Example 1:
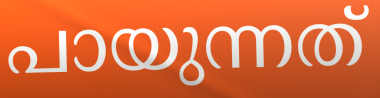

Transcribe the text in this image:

പായുന്നത്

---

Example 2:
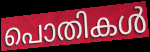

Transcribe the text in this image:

പൊതികൾ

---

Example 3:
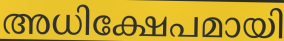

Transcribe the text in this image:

അധിക്ഷേപമായി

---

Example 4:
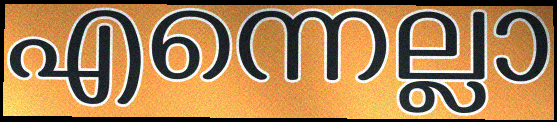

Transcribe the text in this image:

എന്നെല്ലാ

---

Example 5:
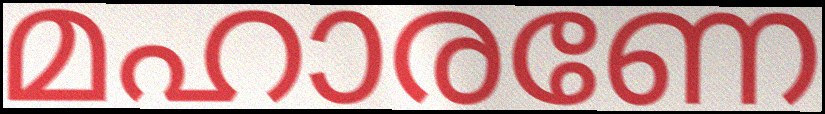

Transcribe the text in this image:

മഹാരണേ